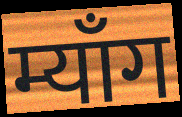
म्याँग